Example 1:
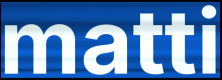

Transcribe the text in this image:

matti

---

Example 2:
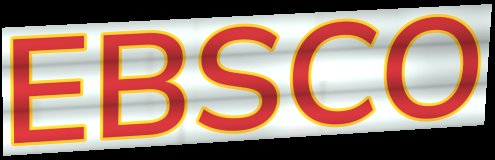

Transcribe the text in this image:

EBSCO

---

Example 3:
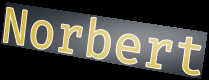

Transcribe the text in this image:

Norbert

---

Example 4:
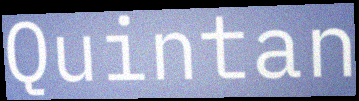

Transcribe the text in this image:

Quintan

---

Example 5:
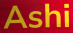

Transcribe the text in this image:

Ashi